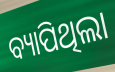
ବ୍ୟାପିଥିଲା